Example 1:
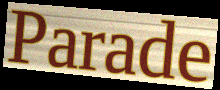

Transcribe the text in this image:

Parade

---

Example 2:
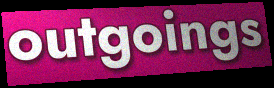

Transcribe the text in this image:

outgoings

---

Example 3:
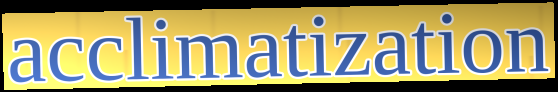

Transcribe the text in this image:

acclimatization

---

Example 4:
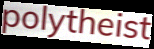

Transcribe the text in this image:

polytheist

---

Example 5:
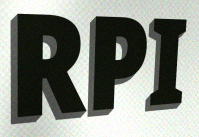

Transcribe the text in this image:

RPI